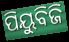
ପିୟୁବିଜି